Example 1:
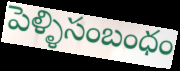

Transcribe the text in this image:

పెళ్ళిసంబంధం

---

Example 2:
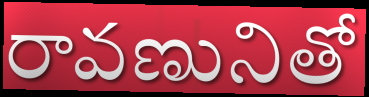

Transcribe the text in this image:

రావణునితో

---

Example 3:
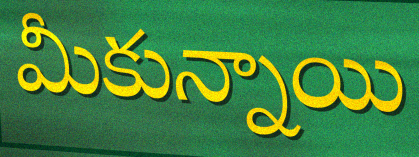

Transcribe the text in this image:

మీకున్నాయి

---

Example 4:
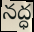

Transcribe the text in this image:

నద్ధ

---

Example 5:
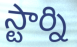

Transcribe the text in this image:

స్టార్ని